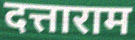
दत्ताराम